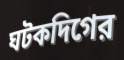
ঘটকদিগের